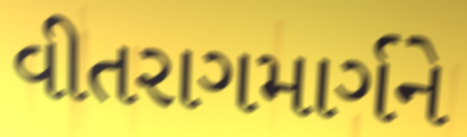
વીતરાગમાર્ગને